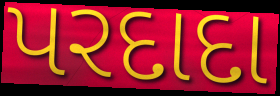
પરદાદા